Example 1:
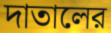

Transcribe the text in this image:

দাতালের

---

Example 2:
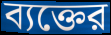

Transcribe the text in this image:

ব্যক্তের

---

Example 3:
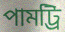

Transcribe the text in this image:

পামট্রি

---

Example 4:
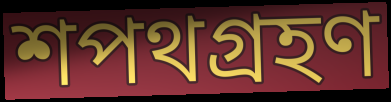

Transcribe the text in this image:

শপথগ্রহণ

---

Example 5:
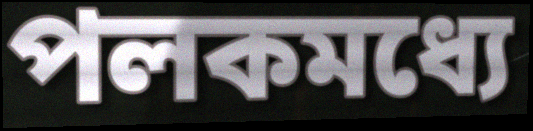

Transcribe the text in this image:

পলকমধ্যে